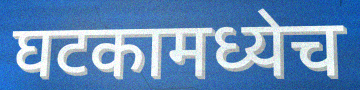
घटकामध्येच